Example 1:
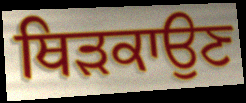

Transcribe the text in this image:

ਥਿੜਕਾਉਣ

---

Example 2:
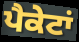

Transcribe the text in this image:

ਪੈਕੇਟਾਂ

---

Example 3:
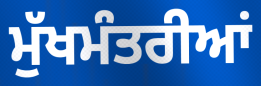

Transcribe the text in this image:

ਮੁੱਖਮੰਤਰੀਆਂ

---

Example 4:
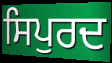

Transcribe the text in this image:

ਸਿਪੁਰਦ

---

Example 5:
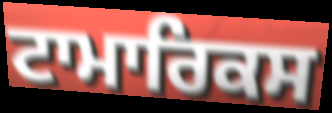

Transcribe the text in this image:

ਟਾਮਾਰਿਕਸ